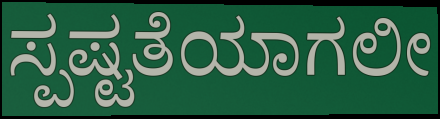
ಸ್ಪಷ್ಟತೆಯಾಗಲೀ